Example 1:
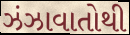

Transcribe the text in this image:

ઝંઝાવાતોથી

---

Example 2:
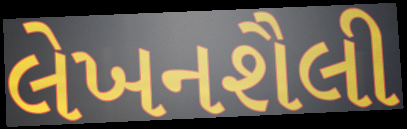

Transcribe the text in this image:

લેખનશૈલી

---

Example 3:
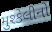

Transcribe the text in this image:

મુશ્કેલીનો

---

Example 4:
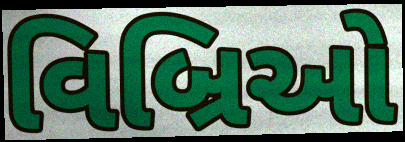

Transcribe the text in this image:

વિબ્રિઓ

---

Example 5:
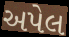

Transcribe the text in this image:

અપેલ